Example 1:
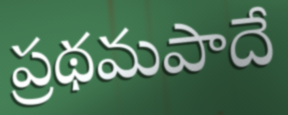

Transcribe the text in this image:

ప్రథమపాదే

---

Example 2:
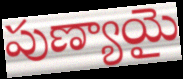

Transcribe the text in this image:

పుణ్యాయై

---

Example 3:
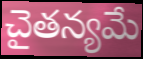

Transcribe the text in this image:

చైతన్యమే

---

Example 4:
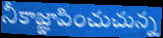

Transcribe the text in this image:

నీకాజ్ఞాపించుచున్న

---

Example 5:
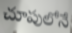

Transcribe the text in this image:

చూపులోనే